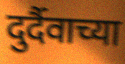
दुर्दैवाच्या